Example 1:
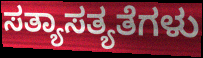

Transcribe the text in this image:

ಸತ್ಯಾಸತ್ಯತೆಗಳು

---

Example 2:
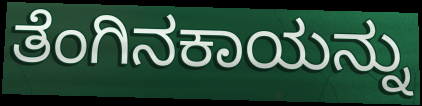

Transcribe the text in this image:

ತೆಂಗಿನಕಾಯನ್ನು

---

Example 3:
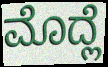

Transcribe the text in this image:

ಮೊದ್ಲೆ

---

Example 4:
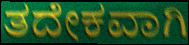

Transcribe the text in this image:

ತದೇಕವಾಗಿ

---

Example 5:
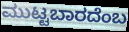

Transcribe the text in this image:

ಮುಟ್ಟಬಾರದೆಂಬ